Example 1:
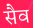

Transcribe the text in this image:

सैव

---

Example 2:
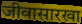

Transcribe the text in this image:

जीवासारखा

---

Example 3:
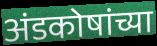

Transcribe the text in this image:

अंडकोषांच्या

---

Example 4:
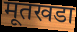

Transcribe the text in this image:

मूतखडा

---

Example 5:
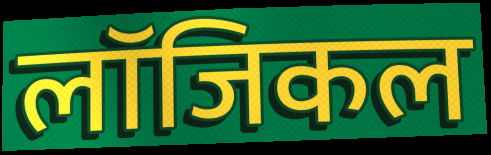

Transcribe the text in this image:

लॉजिकल